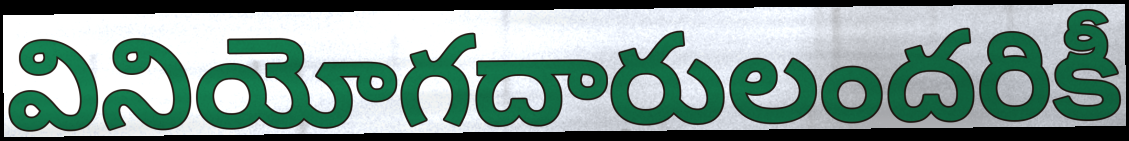
వినియోగదారులందరికీ